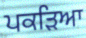
ਪਕੜਿਆ